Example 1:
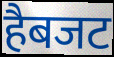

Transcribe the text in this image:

हैबजट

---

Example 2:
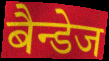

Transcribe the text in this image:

बैन्डेज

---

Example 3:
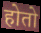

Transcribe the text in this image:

होतो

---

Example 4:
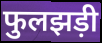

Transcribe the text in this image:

फुलझड़ी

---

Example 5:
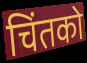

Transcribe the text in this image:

चिंतको